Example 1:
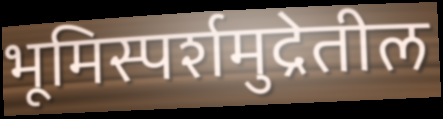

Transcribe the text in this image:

भूमिस्पर्शमुद्रेतील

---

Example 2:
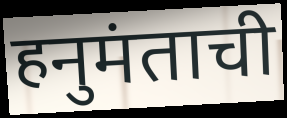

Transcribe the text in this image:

हनुमंताची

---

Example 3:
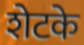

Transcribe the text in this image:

शेटके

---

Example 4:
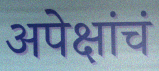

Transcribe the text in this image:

अपेक्षांचं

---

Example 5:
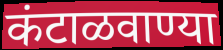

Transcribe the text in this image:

कंटाळवाण्या